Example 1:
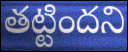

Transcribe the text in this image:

తట్టిందని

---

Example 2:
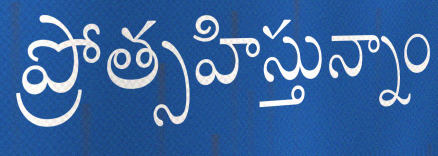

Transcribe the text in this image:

ప్రోత్సహిస్తున్నాం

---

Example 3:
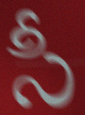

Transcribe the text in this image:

సీ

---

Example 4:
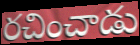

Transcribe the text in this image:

రచించాడు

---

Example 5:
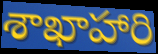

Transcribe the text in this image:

శాఖాహారి